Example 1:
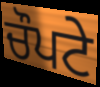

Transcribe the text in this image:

ਚੌਪਟੇ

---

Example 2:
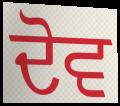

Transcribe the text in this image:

ਦੋਵ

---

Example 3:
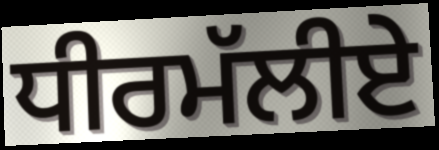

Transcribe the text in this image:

ਧੀਰਮੱਲੀਏ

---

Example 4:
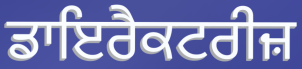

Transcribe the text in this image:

ਡਾਇਰੈਕਟਰੀਜ਼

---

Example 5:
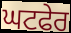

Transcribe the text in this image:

ਘਟਫੇਰ